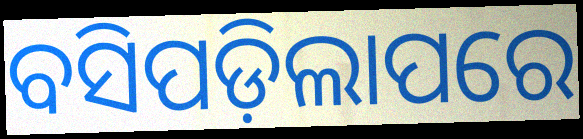
ବସିପଡ଼ିଲାପରେ